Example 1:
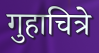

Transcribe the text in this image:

गुहाचित्रे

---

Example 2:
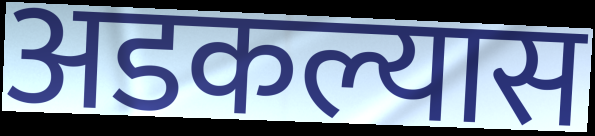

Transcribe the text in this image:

अडकल्यास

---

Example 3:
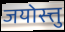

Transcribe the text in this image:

जयोस्त्तु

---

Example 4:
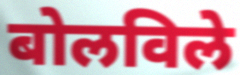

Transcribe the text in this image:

बोलविले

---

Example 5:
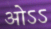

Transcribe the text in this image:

ओऽऽ